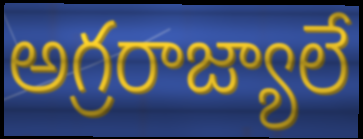
అగ్రరాజ్యాలే